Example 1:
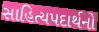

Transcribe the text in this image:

સાહિત્યપદાર્થનો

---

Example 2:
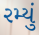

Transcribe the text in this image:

રમ્યું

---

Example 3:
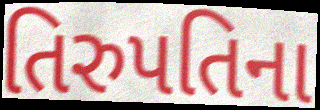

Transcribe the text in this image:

તિરુપતિના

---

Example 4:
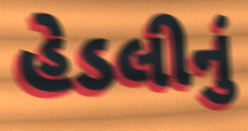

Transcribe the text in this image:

હેડલીનું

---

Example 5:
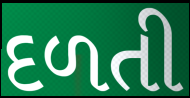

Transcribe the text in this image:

દળતી